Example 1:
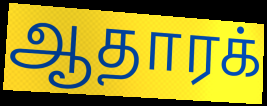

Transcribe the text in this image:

ஆதாரக்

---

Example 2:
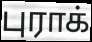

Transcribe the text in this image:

புராக்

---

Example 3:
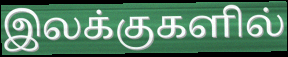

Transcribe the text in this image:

இலக்குகளில்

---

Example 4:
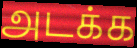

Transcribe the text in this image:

அடக்க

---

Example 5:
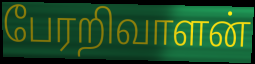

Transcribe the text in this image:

பேரறிவாளன்